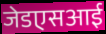
जेडएसआई